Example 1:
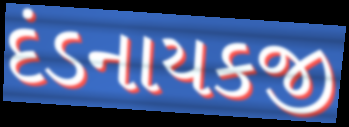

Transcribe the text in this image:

દંડનાયકજી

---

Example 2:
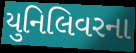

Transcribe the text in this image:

યુનિલિવરના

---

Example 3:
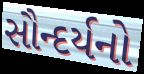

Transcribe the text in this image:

સૌન્દર્યનો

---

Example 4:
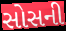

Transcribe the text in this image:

સોસની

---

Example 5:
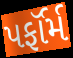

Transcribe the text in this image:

પર્ફૉર્મ